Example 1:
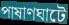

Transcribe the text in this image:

পাষাণঘাটে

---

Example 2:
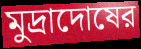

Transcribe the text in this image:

মুদ্রাদোষের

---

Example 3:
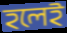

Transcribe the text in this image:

হলেই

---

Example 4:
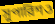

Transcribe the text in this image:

সুপারিশও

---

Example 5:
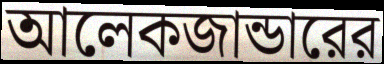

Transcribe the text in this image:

আলেকজান্ডারের